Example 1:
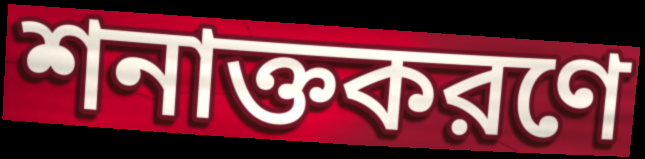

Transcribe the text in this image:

শনাক্তকরণে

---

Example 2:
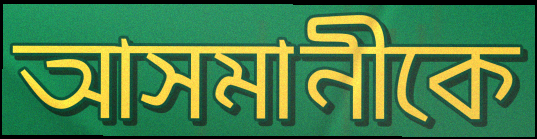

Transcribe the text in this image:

আসমানীকে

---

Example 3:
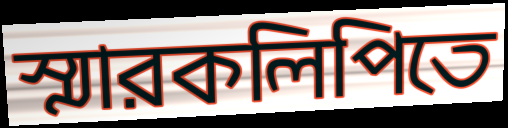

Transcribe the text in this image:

স্মারকলিপিতে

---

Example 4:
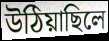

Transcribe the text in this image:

উঠিয়াছিলে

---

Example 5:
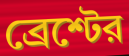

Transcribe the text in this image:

ব্রেশ্টের